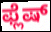
ಫ್ಲೆಷ್